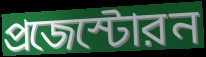
প্রজেস্টোরন